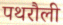
पथरौली